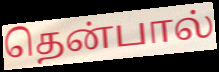
தென்பால்